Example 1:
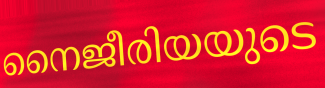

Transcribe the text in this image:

നൈജീരിയയുടെ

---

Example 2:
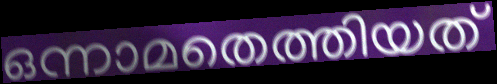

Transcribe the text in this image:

ഒന്നാമതെത്തിയത്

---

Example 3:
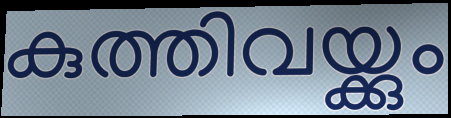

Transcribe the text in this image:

കുത്തിവയ്ക്കും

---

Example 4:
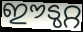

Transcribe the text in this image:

ഈടുറ്റ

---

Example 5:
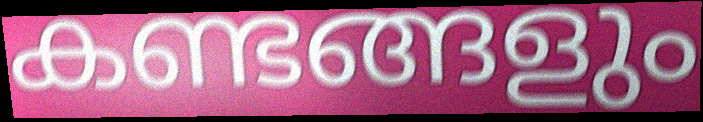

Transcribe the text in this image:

കണ്ടങ്ങളും